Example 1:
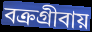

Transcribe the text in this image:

বক্রগ্রীবায়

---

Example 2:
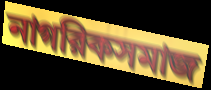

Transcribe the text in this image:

নাগরিকসমাজ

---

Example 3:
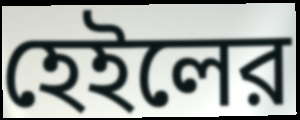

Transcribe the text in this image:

হেইলের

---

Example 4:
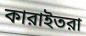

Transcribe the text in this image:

কারাইতরা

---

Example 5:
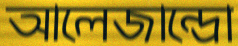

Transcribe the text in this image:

আলেজান্দ্রো